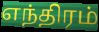
எந்திரம்